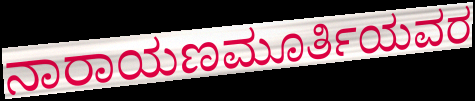
ನಾರಾಯಣಮೂರ್ತಿಯವರ